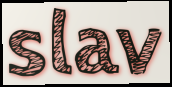
slav